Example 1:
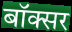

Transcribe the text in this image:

बॉक्सर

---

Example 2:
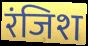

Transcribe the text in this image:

रंजिश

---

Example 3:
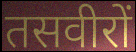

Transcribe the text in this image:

तसवीरों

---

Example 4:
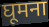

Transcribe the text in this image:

घूमना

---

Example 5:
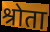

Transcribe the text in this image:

श्रोता